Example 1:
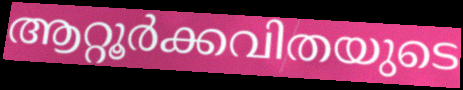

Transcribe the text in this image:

ആറ്റൂർക്കവിതയുടെ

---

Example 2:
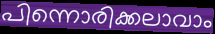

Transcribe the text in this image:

പിന്നൊരിക്കലാവാം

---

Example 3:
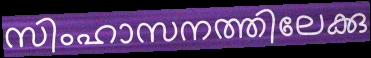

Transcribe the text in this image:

സിംഹാസനത്തിലേക്കു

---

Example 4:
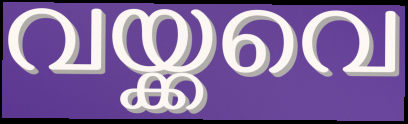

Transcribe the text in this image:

വയ്ക്കവെ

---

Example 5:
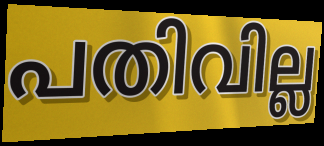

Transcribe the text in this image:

പതിവില്ല